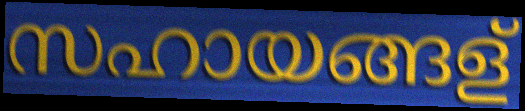
സഹായങ്ങള്